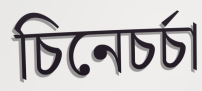
চিনেচৰ্চা